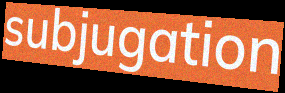
subjugation